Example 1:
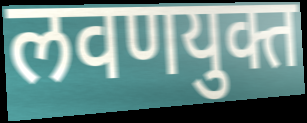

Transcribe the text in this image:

लवणयुक्त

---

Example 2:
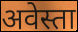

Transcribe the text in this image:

अवेस्ता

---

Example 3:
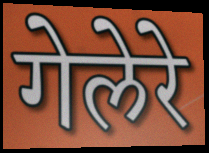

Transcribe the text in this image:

गेलेरे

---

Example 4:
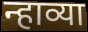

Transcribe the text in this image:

न्हाव्या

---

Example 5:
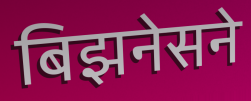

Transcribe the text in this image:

बिझनेसने